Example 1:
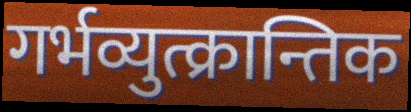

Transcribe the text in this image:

गर्भव्युत्क्रान्तिक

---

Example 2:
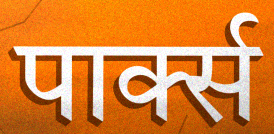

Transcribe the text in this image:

पार्क्‍स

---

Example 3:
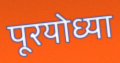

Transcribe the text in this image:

पूरयोध्या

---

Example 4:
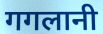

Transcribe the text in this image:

गगलानी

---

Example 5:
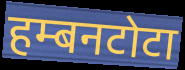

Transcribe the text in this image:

हम्बनटोटा